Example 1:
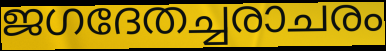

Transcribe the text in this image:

ജഗദേതച്ചരാചരം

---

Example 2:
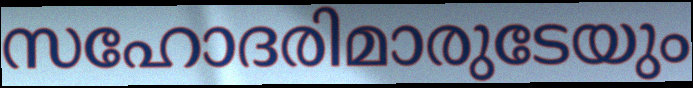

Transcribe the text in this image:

സഹോദരിമാരുടേയും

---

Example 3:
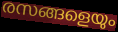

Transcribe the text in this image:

രസങ്ങളെയും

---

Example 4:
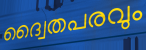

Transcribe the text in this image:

ദ്വൈതപരവും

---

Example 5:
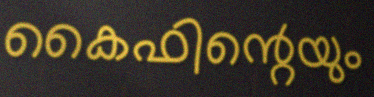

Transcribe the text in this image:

കൈഫിന്റെയും